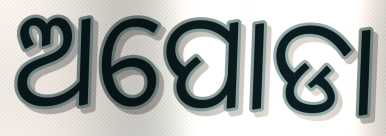
ଅପୋଡା